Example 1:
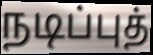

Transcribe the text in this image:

நடிப்புத்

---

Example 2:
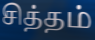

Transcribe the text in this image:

சித்தம்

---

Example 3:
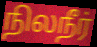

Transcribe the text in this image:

நிலநீர்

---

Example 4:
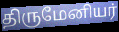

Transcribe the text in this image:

திருமேனியர்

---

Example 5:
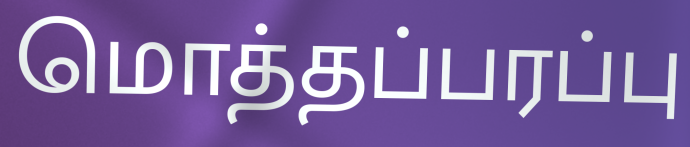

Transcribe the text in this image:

மொத்தப்பரப்பு